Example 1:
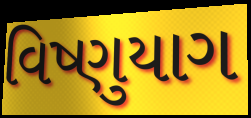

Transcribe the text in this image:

વિષ્ણુયાગ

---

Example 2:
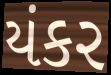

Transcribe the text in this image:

યંકર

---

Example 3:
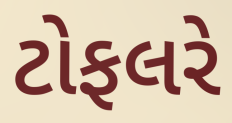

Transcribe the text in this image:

ટોફલરે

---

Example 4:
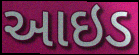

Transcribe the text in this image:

આઇડ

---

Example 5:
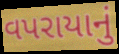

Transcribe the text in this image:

વપરાયાનું